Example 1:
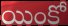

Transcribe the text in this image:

యింకో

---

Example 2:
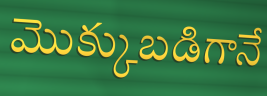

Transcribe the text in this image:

మొక్కుబడిగానే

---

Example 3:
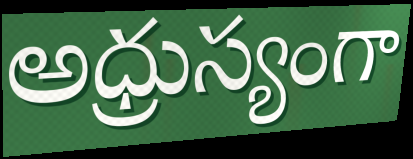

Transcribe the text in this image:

అధ్రుస్యంగా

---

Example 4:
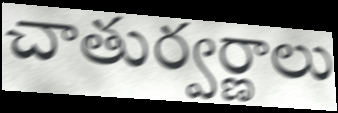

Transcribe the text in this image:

చాతుర్వర్ణాలు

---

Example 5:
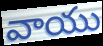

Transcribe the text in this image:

వాయు